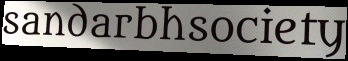
sandarbhsociety